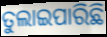
ତୁଲାଇପାରିଛି